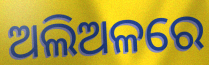
ଅଲିଅଳରେ